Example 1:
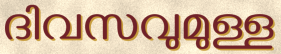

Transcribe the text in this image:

ദിവസവുമുള്ള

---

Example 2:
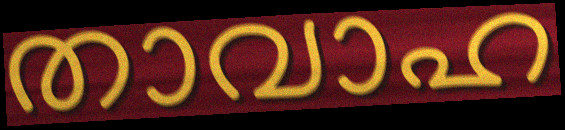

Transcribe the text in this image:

താവാഹ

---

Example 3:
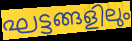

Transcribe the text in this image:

ഘട്ടങ്ങളിലും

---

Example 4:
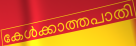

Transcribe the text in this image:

കേൾക്കാത്തപാതി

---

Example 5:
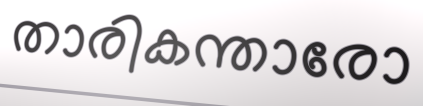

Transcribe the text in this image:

താരികന്താരോ